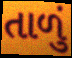
તાળું